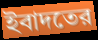
ইবাদতের